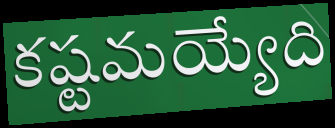
కష్టమయ్యేది